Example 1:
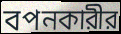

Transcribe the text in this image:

বপনকারীর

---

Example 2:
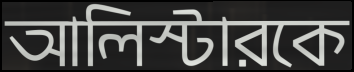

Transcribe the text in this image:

আলিস্টারকে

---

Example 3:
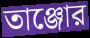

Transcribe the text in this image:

তাঞ্জোর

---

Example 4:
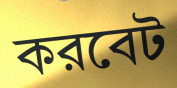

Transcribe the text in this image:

করবেট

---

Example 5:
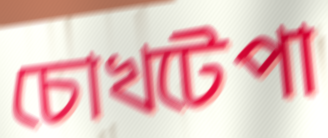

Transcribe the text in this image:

চোখটেপা